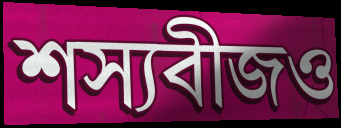
শস্যবীজও